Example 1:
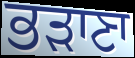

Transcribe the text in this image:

ਭੜਾਣਾ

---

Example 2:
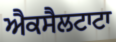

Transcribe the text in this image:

ਐਕਸੈਲਟਾਟਾ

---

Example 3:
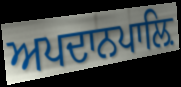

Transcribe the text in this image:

ਅਪਦਾਨਪਾਲ਼ਿ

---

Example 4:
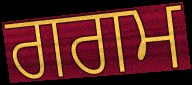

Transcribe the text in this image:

ਗਗਮ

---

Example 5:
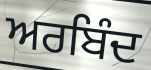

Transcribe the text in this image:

ਅਰਬਿੰਦ